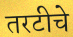
तरटीचे